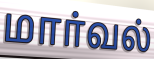
மார்வல்